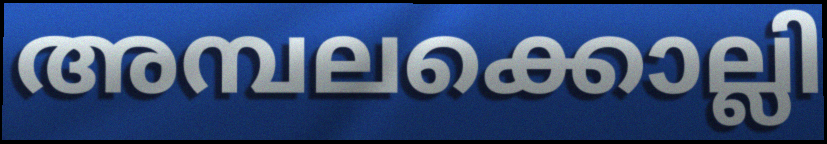
അമ്പലക്കൊല്ലി